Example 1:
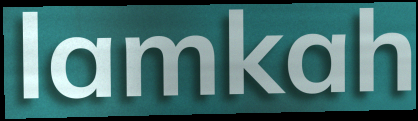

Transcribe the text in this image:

lamkah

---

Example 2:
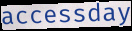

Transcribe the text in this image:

accessday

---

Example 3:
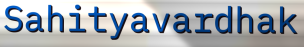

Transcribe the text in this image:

Sahityavardhak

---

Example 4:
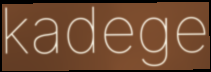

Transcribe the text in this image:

kadege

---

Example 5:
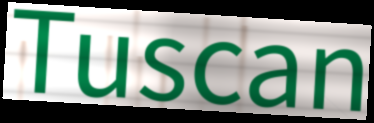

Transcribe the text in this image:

Tuscan